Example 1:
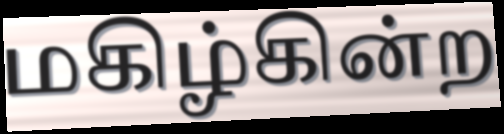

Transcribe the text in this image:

மகிழ்கின்ற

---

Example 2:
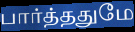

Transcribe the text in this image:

பார்த்ததுமே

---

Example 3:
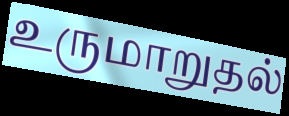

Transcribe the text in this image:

உருமாறுதல்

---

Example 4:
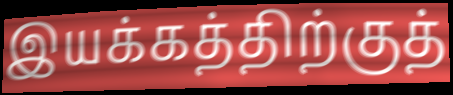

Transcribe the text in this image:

இயக்கத்திற்குத்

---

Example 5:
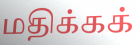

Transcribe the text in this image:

மதிக்கக்